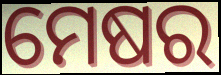
ମେଷର